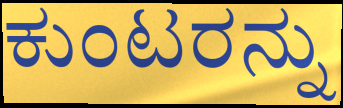
ಕುಂಟರನ್ನು